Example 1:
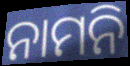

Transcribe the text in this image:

ନାମନି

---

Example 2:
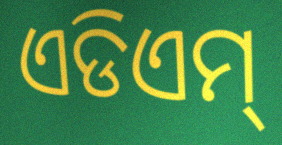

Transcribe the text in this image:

ଏଡିଏମ୍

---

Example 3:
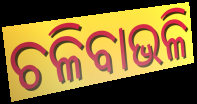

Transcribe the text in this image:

ଚଳିବାଭଳି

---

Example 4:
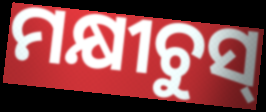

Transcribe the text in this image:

ମକ୍ଷୀଚୁସ୍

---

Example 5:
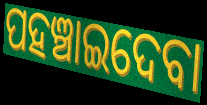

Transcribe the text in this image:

ପହଞ୍ଚାଇଦେବା